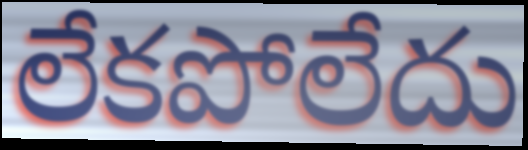
లేకపోలేదు